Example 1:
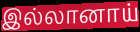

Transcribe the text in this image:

இல்லானாய்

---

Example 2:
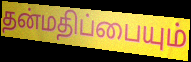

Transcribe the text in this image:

தன்மதிப்பையும்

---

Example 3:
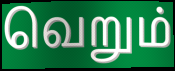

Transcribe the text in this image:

வெறும்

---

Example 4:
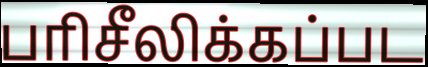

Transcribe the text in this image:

பரிசீலிக்கப்பட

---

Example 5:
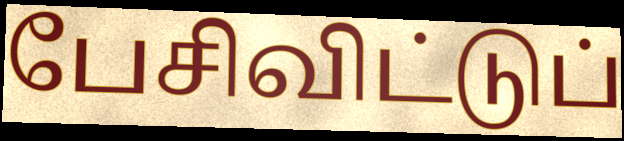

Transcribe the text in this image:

பேசிவிட்டுப்